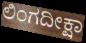
ಲಿಂಗದೀಕ್ಷಾ